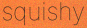
squishy